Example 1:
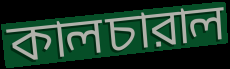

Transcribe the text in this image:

কালচারাল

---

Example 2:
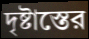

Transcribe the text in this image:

দৃষ্টাস্তের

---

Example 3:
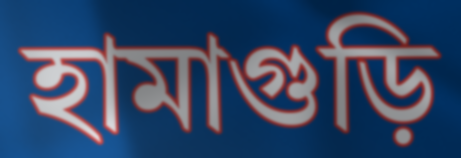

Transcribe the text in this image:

হামাগুড়ি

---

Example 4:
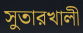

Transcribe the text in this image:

সুতারখালী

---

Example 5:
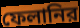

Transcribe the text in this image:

ফেলানির